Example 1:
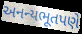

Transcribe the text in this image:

અનન્યભૂતપણે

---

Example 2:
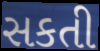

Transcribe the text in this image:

સકતી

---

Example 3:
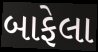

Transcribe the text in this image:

બાફેલા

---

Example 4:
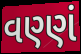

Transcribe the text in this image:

વણ્ણં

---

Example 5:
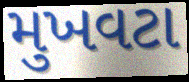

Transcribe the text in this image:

મુખવટા